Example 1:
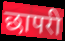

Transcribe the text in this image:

छापरी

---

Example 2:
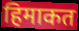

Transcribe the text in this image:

हिमाकत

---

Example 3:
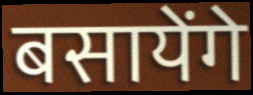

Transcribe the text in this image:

बसायेंगे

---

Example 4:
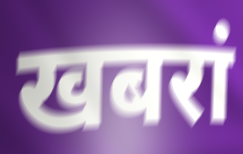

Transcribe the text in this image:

खबरां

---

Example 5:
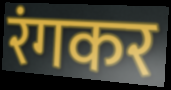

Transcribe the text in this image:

रंगकर